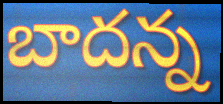
బాదన్న